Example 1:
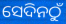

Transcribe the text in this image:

ସେଦିନଠୁଁ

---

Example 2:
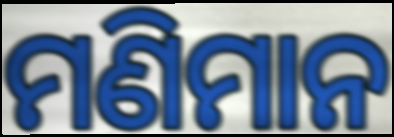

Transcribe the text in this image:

ମଣିମାନ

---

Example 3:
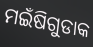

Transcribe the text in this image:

ମଇଁଷିଗୁଡାକ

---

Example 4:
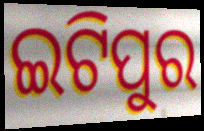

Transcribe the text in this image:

ଇଟିପୁର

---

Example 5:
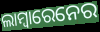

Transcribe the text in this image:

ଲାମ୍ବାରେନେର